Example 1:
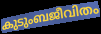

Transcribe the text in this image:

കുടുംബജീവിതം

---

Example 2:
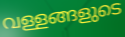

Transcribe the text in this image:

വള്ളങ്ങളുടെ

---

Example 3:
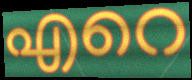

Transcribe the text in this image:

എറെ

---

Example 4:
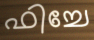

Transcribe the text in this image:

ഫിച്ചേ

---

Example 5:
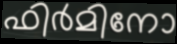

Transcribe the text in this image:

ഫിർമിനോ